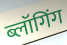
ब्‍लॉगिंग